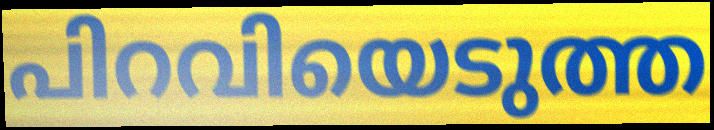
പിറവിയെടുത്ത